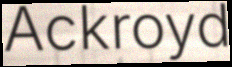
Ackroyd